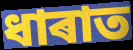
ধাৰাত